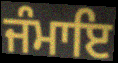
ਜੰਮਾਇ